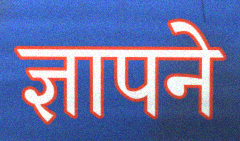
ज्ञापने